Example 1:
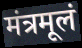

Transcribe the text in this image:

मंत्रमूलं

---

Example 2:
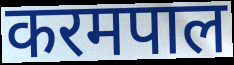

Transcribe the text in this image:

करमपाल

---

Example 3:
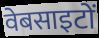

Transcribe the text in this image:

वेबसाइटों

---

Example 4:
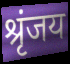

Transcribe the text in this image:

श्रृंजय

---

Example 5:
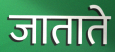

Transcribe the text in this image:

जाताते